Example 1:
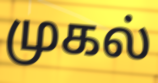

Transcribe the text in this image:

முகல்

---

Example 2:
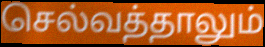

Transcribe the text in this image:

செல்வத்தாலும்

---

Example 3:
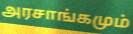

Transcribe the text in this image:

அரசாங்கமும்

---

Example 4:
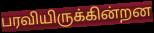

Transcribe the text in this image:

பரவியிருக்கின்றன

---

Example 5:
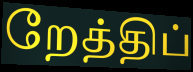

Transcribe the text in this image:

றேத்திப்